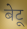
बेटू